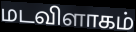
மடவிளாகம்